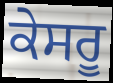
ਕੇਸਰੂ